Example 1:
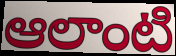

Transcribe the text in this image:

ఆలాంటి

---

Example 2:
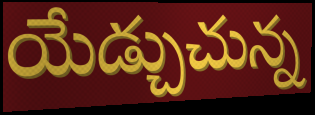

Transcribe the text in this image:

యేడ్చుచున్న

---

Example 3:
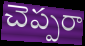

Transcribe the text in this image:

చెప్పరా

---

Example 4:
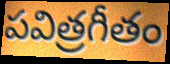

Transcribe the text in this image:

పవిత్రగీతం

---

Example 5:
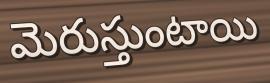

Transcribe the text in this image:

మెరుస్తుంటాయి